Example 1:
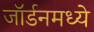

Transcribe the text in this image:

जॉर्डनमध्ये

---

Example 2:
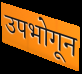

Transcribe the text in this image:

उपभोगून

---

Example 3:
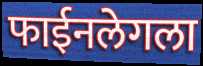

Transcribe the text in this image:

फाईनलेगला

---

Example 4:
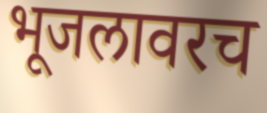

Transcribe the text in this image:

भूजलावरच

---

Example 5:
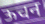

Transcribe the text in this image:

ऊचन